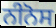
ਨੀਨੋਸ